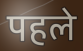
पहले